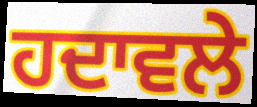
ਹਦਾਵਲੇ